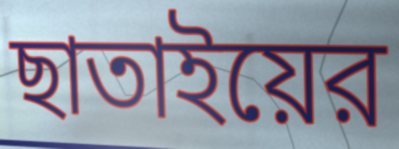
ছাতাইয়ের